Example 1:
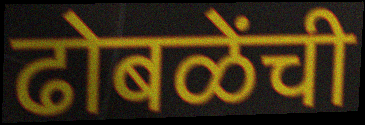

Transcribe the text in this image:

ढोबळेंची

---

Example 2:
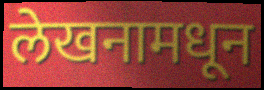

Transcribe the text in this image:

लेखनामधून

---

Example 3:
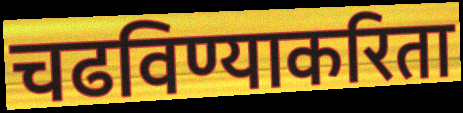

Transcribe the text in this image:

चढविण्याकरिता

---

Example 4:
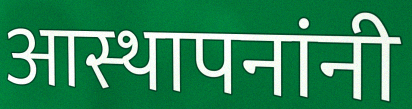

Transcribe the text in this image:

आस्थापनांनी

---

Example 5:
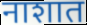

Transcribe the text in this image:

नाशात